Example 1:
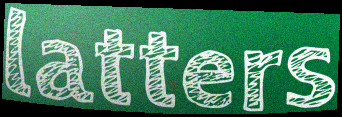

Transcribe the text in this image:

latters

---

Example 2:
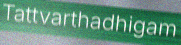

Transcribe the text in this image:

Tattvarthadhigam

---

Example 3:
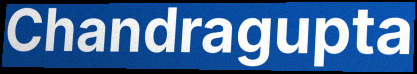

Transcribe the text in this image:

Chandragupta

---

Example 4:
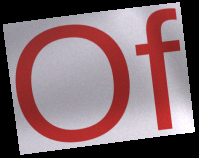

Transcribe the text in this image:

Of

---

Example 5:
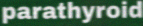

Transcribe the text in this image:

parathyroid